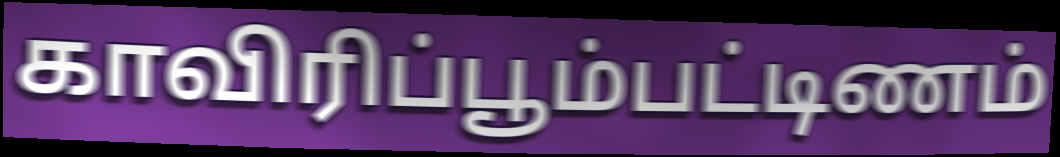
காவிரிப்பூம்பட்டிணம்